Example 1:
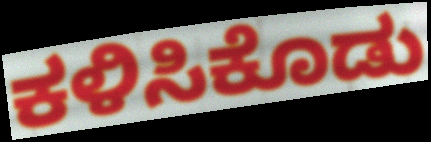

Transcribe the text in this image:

ಕಳಿಸಿಕೊಡು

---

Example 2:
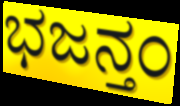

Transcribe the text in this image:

ಭಜನ್ತಂ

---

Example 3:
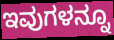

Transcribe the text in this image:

ಇವುಗಳನ್ನೂ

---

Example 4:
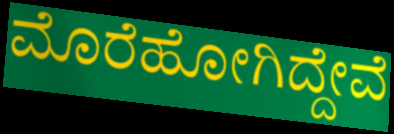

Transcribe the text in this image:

ಮೊರೆಹೋಗಿದ್ದೇವೆ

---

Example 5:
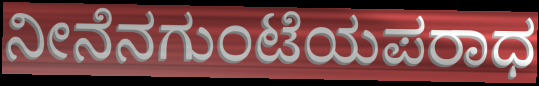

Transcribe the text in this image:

ನೀನೆನಗುಂಟೆಯಪರಾಧ